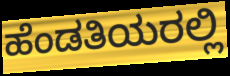
ಹೆಂಡತಿಯರಲ್ಲಿ